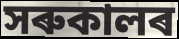
সৰুকালৰ